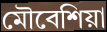
মৌবেশিয়া